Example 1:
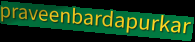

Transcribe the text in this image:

praveenbardapurkar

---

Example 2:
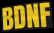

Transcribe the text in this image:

BDNF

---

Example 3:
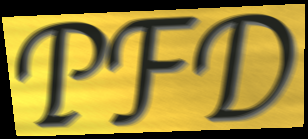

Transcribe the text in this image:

PFD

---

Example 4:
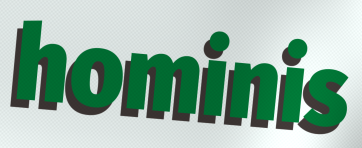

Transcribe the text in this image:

hominis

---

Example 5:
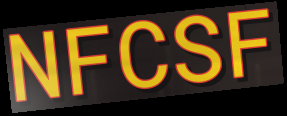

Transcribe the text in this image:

NFCSF